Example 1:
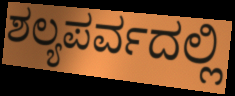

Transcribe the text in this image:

ಶಲ್ಯಪರ್ವದಲ್ಲಿ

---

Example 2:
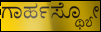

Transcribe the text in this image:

ಗಾರ್ಹಸ್ಥ್ಯೋ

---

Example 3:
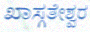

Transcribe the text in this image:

ಖಾಸ್ಗತೇಶ್ವರ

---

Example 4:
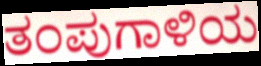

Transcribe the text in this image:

ತಂಪುಗಾಳಿಯ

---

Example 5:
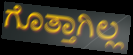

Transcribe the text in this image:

ಗೊತ್ತಾಗಿಲ್ಲ